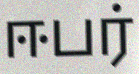
ஈபர்